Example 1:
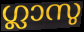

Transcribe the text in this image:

ഗ്ലാസു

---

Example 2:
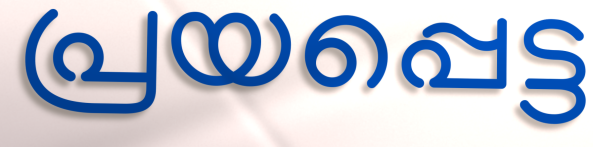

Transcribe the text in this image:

പ്രയപ്പെട്ട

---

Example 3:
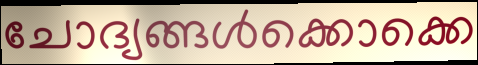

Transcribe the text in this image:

ചോദ്യങ്ങൾക്കൊക്കെ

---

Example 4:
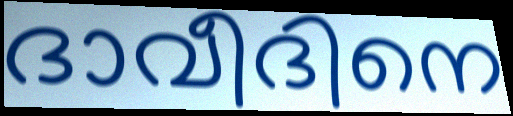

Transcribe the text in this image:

ദാവീദിനെ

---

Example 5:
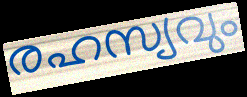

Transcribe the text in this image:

രഹസ്യവും